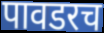
पावडरच